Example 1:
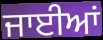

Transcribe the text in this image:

ਜਾਈਆਂ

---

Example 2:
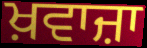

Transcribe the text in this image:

ਖ਼ਵਾਜ਼ਾ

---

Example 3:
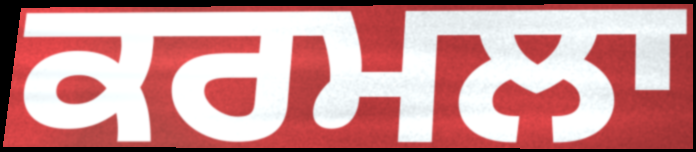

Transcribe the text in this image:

ਕਰਮਲਾ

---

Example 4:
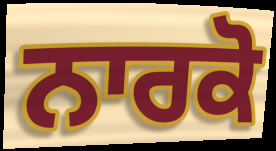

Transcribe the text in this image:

ਨਾਰਕੋ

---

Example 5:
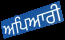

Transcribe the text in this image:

ਅਪਿਆਰੀ